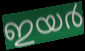
ഇയർ